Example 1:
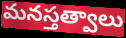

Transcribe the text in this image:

మనస్తత్వాలు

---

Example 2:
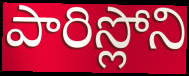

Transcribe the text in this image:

పారిస్లోని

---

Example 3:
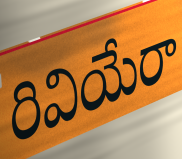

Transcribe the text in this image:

రివియేరా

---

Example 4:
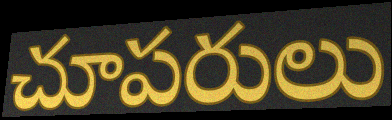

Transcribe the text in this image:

చూపరులు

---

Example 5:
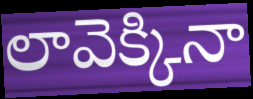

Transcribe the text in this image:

లావెక్కినా